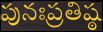
పునఃప్రతిష్ఠ